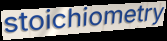
stoichiometry